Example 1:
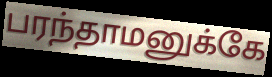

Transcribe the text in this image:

பரந்தாமனுக்கே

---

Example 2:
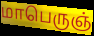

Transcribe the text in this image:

மாபெருஞ்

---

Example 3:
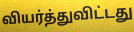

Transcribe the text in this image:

வியர்த்துவிட்டது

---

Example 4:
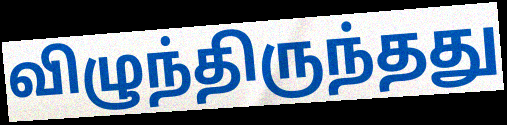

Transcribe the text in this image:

விழுந்திருந்தது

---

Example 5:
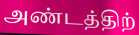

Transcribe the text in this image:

அண்டத்திற்